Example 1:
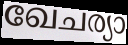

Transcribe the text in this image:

ഖേചര്യാ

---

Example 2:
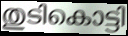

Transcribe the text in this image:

തുടികൊട്ടി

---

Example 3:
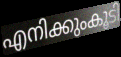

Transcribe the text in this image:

എനിക്കുംകൂടി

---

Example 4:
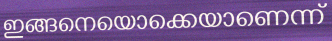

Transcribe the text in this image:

ഇങ്ങനെയൊക്കെയാണെന്ന്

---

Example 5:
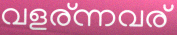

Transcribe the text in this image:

വളര്ന്നവര്